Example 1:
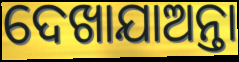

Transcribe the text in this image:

ଦେଖାଯାଅନ୍ତା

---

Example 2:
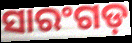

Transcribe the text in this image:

ସାରଂଗଡ଼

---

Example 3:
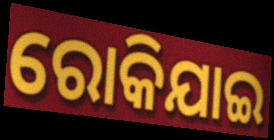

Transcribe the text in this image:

ରୋକିଯାଇ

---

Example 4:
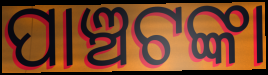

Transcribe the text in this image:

ପାଞ୍ଚଟଙ୍କା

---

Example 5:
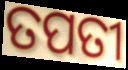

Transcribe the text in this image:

ତପତୀ